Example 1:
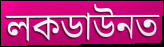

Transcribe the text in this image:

লকডাউনত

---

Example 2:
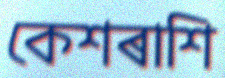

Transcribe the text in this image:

কেশৰাশি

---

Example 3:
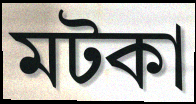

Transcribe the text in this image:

মটকা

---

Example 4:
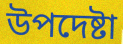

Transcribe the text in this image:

উপদেষ্টা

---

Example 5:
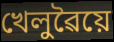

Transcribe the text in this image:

খেলুৱৈয়ে